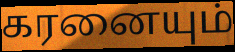
கரனையும்